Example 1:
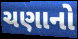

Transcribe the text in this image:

ચણાનો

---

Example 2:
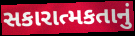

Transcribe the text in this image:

સકારાત્મકતાનું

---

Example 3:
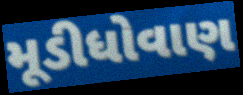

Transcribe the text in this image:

મૂડીધોવાણ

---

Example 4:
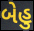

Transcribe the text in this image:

બેહુ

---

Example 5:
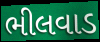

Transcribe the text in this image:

ભીલવાડ